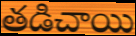
తడిచాయి